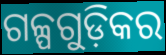
ଗଳ୍ପଗୁଡ଼ିକର